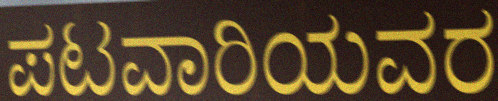
ಪಟವಾರಿಯವರ